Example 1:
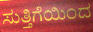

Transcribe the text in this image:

ಸುತ್ತಿಗೆಯಿಂದ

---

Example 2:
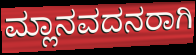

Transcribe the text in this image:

ಮ್ಲಾನವದನರಾಗಿ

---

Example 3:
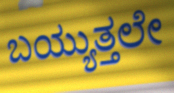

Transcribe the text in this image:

ಬಯ್ಯುತ್ತಲೇ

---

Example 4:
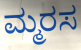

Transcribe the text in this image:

ಮ್ಮರಸ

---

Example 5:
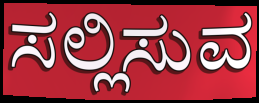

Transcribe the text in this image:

ಸಲ್ಲಿಸುವ